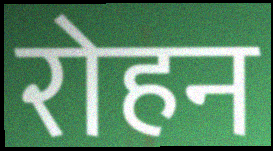
रोहन